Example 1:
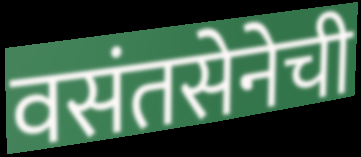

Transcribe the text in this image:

वसंतसेनेची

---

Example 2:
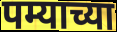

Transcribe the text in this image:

पम्याच्या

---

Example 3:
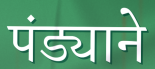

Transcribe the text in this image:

पंड्याने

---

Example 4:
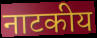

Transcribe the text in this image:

नाटकीय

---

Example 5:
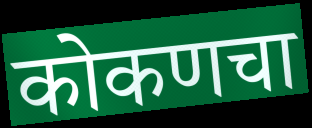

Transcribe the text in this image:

कोकणचा